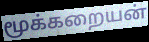
மூக்கறையன்